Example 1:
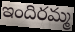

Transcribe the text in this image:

ఇందిరమ్మ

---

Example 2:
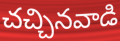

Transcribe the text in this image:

చచ్చినవాడి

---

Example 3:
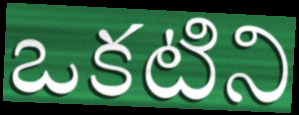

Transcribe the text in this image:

ఒకటిని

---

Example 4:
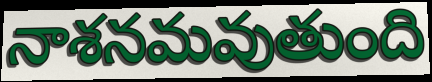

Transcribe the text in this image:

నాశనమవుతుంది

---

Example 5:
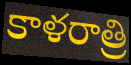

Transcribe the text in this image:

కాళరాత్రి